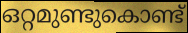
ഒറ്റമുണ്ടുകൊണ്ട്